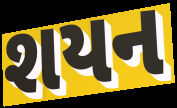
શયન